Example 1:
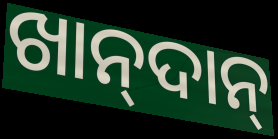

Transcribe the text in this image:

ଖାନ୍‍ଦାନ୍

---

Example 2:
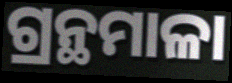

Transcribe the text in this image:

ଗ୍ରନ୍ଥମାଳା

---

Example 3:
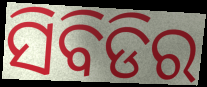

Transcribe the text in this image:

ସିବିଡିର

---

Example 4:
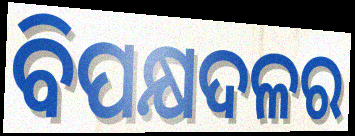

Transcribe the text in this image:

ବିପକ୍ଷଦଳର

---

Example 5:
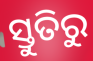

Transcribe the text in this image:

ସ୍ତୁତିରୁ